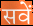
सवें